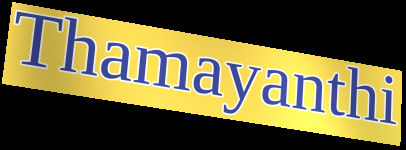
Thamayanthi